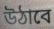
উঠাবে